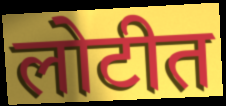
लोटीत